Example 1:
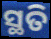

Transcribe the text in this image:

ସ୍ଥତି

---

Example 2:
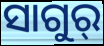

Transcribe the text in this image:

ସାଗୁର୍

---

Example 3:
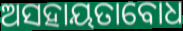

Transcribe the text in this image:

ଅସହାୟତାବୋଧ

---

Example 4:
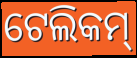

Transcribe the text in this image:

ଟେଲିକମ୍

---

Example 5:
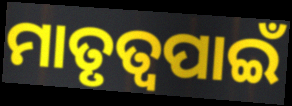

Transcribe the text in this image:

ମାତୃତ୍ୱପାଇଁ